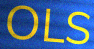
OLS